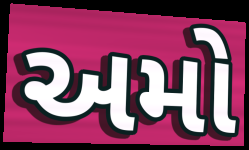
અમો